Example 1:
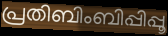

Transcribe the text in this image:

പ്രതിബിംബിപ്പിപ്പൂ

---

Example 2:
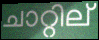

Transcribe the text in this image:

ചാറ്റില്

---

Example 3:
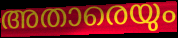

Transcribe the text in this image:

അതാരെയും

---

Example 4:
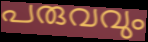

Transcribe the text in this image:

പരുവവും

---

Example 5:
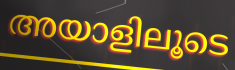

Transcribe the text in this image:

അയാളിലൂടെ